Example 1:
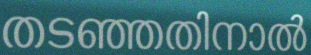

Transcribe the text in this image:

തടഞ്ഞതിനാൽ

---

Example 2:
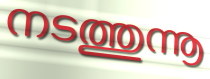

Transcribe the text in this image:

നടത്തുന്നൂ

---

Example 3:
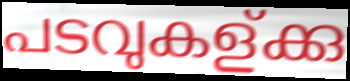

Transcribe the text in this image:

പടവുകള്ക്കു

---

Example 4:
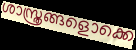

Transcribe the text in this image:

ശാസ്ത്രങ്ങളൊക്കെ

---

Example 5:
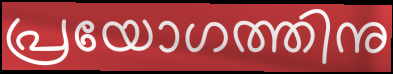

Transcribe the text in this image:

പ്രയോഗത്തിനു